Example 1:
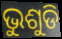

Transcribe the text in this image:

ଭୁଶୁଡି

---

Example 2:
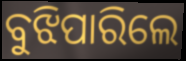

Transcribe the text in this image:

ବୁଝିପାରିଲେ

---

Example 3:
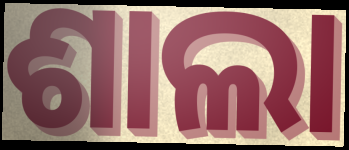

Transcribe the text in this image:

ଶାଲା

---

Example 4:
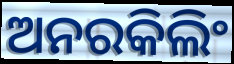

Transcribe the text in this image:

ଅନରକିଲିଂ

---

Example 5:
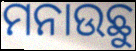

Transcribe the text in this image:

ମନାଉଛୁ